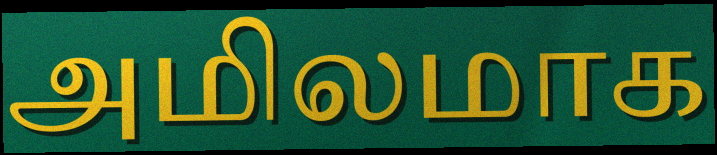
அமிலமாக